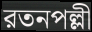
রতনপল্লী